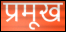
प्रमूख